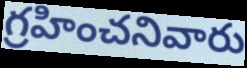
గ్రహించనివారు